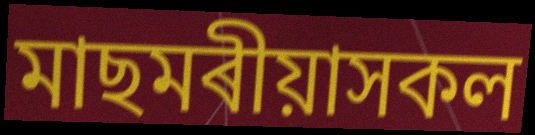
মাছমৰীয়াসকল